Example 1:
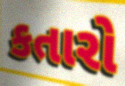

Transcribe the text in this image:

કતારો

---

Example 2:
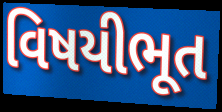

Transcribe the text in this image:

વિષયીભૂત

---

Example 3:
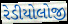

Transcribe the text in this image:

રેડીયોલોજી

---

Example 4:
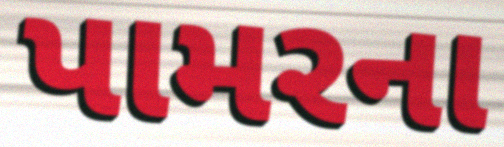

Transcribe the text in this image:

પામરના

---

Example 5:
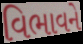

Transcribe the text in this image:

વિભાવને